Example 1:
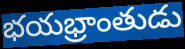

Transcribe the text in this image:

భయభ్రాంతుడు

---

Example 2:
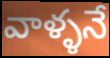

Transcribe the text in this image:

వాళ్ళనే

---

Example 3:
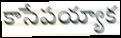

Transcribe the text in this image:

కాసేపయ్యాక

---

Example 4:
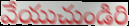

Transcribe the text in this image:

వేయుచుండిరి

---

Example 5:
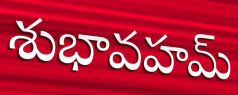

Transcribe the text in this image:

శుభావహమ్